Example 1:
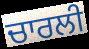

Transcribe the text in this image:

ਚਾਰਲੀ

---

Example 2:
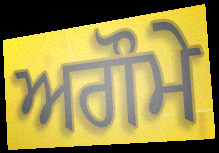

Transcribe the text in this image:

ਅਗੌਮੇ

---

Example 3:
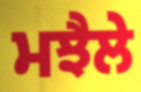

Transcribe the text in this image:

ਮਝੈਲੇ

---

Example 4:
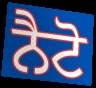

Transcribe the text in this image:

ਨੈਟੋ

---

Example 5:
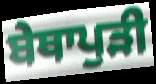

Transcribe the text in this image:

ਬੇਥਾਪੁੜੀ